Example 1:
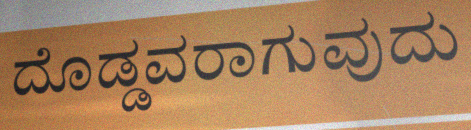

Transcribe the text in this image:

ದೊಡ್ಡವರಾಗುವುದು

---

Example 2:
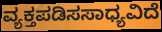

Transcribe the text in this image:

ವ್ಯಕ್ತಪಡಿಸಸಾಧ್ಯವಿದೆ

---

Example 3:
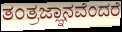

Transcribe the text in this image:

ತಂತ್ರಜ್ಞಾನವೆಂದರೆ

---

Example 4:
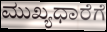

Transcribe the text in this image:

ಮುಖ್ಯಧಾರೆಗೆ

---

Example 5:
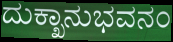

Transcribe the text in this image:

ದುಕ್ಖಾನುಭವನಂ